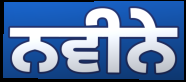
ਨਵੀਨੇ